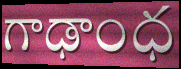
గాఢాంధ